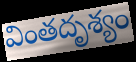
వింతదృశ్యం